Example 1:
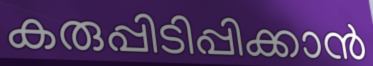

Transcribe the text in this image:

കരുപ്പിടിപ്പിക്കാൻ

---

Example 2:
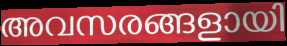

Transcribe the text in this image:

അവസരങ്ങളായി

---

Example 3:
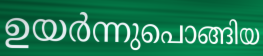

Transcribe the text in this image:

ഉയർന്നുപൊങ്ങിയ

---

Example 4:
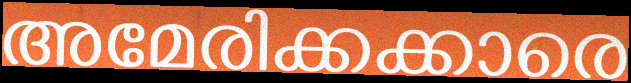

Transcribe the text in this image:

അമേരിക്കക്കാരെ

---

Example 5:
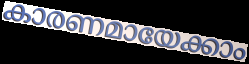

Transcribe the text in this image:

കാരണമായേക്കാം